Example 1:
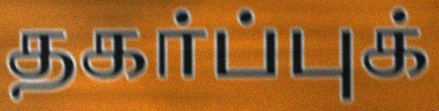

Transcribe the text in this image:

தகர்ப்புக்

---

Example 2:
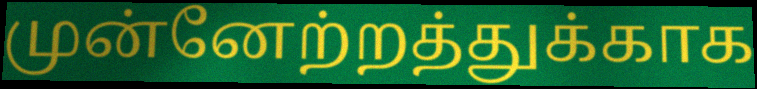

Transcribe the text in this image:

முன்னேற்றத்துக்காக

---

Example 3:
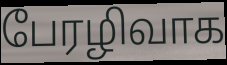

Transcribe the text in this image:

பேரழிவாக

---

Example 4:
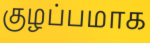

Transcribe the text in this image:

குழப்பமாக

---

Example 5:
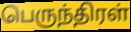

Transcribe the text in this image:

பெருந்திரள்